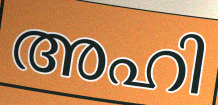
അഹി